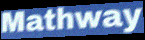
Mathway